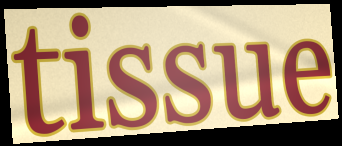
tissue